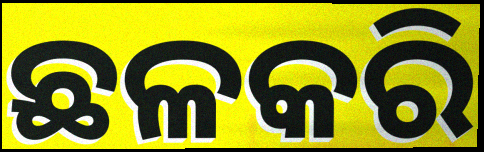
ଛଳକରି